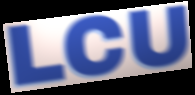
LCU